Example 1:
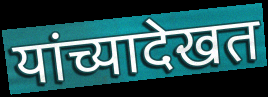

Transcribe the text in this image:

यांच्यादेखत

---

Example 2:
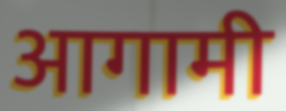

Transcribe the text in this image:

आगामी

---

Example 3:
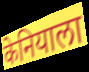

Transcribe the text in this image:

केनियाला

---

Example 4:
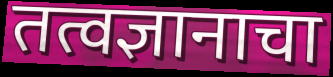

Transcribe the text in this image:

तत्वज्ञानाचा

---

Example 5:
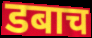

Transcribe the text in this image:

डबाच